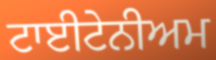
ਟਾਈਟੇਨੀਅਮ